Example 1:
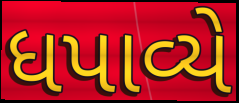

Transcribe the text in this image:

ધપાવ્યે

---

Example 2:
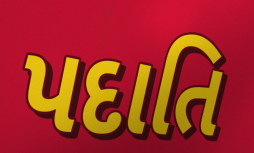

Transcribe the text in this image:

પદાતિ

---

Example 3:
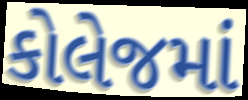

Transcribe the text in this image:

કોલેજમાં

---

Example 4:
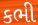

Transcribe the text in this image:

કભી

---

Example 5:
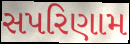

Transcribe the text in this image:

સપરિણામ